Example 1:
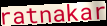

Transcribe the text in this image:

ratnakar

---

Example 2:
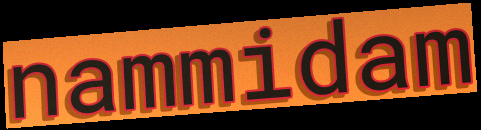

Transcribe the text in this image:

nammidam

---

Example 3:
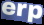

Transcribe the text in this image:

erp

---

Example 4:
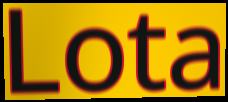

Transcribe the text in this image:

Lota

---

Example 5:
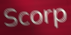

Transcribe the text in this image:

Scorp